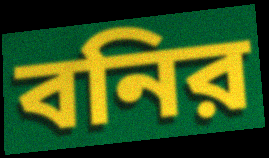
বনির